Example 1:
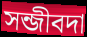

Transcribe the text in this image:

সন্জীবদা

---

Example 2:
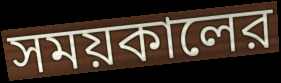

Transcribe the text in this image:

সময়কালের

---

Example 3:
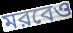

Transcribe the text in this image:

মরবেও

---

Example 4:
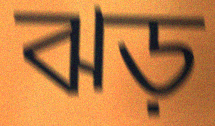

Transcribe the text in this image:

ঝড়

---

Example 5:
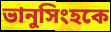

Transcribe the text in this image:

ভানুসিংহকে